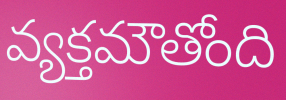
వ్యక్తమౌతోంది